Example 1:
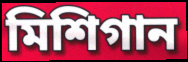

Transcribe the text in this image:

মিশিগান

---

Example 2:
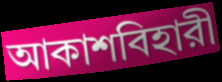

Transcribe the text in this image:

আকাশবিহারী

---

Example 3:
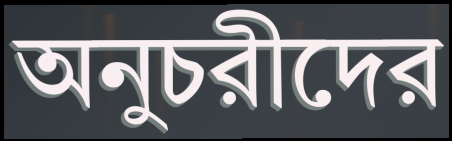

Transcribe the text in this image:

অনুচরীদের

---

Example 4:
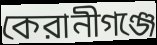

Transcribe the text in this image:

কেরানীগঞ্জে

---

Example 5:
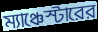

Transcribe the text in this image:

ম্যাঞ্চেস্টারের